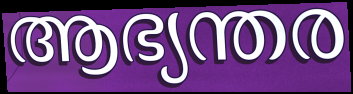
ആഭ്യന്തര